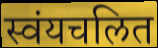
स्वंयचलित